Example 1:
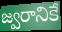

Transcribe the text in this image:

జ్వరానికే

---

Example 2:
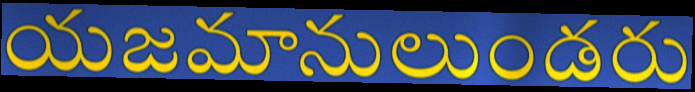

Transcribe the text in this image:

యజమానులుండరు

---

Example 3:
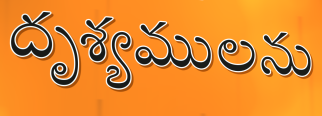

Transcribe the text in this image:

దృశ్యములను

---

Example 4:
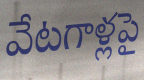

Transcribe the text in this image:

వేటగాళ్లపై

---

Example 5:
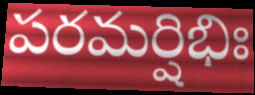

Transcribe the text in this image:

పరమర్షిభిః